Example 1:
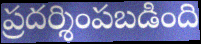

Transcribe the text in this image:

ప్రదర్శింపబడింది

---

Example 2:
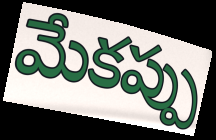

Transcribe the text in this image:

మేకప్పు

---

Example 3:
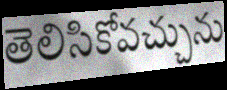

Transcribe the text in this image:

తెలిసికోవచ్చును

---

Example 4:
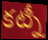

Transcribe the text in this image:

కట్నీ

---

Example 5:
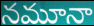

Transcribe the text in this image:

నమూనా